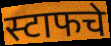
स्टाफचे